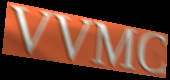
VVMC